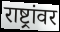
राष्ट्रांवर